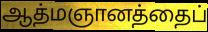
ஆத்மஞானத்தைப்